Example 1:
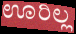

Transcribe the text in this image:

ಊರಿಲ್ಲ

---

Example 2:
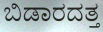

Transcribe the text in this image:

ಬಿಡಾರದತ್ತ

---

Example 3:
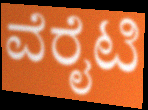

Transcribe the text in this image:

ವೆರೈಟಿ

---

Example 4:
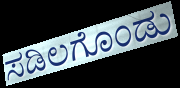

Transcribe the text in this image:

ಸಡಿಲಗೊಂಡು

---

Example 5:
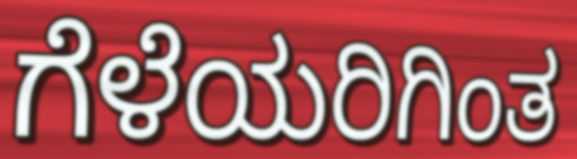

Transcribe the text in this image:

ಗೆಳೆಯರಿಗಿಂತ